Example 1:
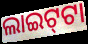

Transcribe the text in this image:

ଲାଇଟ୍‍ଟା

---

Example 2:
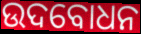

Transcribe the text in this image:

ଉଦବୋଧନ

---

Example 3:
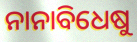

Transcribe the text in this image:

ନାନାବିଧେଷୁ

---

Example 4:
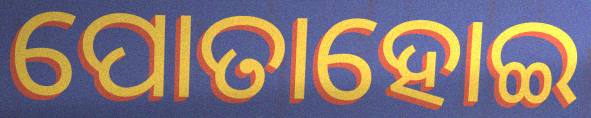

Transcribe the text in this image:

ପୋତାହୋଇ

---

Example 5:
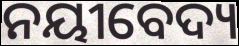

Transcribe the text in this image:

ନୟୀବେଦ୍ୟ